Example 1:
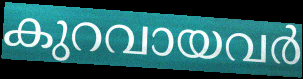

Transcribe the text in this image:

കുറവായവർ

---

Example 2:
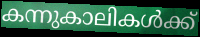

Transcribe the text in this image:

കന്നുകാലികൾക്ക്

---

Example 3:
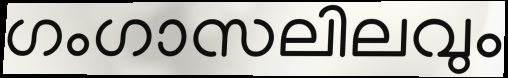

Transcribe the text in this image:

ഗംഗാസലിലവും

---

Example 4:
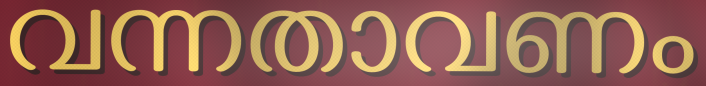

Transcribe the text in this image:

വന്നതാവണം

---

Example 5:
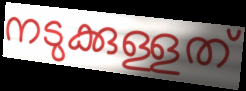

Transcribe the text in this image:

നടുക്കുള്ളത്